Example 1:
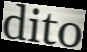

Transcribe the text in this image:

dito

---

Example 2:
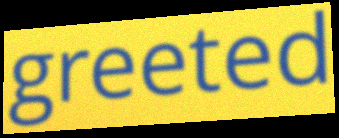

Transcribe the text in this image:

greeted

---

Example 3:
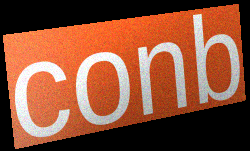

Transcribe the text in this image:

conb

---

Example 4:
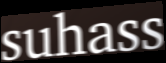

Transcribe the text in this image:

suhass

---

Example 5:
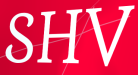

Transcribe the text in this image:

SHV